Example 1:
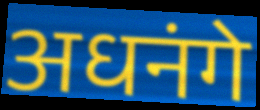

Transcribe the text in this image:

अधनंगे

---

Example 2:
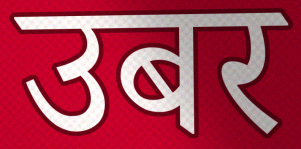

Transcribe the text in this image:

उबर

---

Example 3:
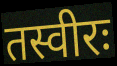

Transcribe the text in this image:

तस्वीरः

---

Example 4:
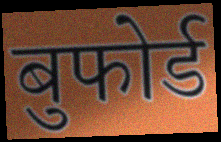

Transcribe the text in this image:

बुफोर्ड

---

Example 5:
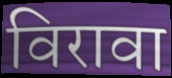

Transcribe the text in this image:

विरावा